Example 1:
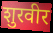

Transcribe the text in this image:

शुरवीर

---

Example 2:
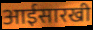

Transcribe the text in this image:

आईसारखी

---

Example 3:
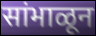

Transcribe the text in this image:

सांभाळून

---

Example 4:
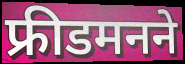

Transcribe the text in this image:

फ्रीडमनने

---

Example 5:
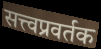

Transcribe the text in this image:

सत्त्वप्रवर्तक